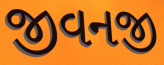
જીવનજી